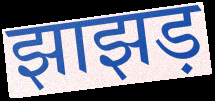
झाझड़